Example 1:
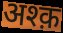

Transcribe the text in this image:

अश्क़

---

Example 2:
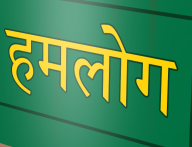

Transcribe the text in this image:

हमलोग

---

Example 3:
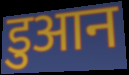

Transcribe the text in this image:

डुआन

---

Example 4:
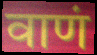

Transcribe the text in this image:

वाणं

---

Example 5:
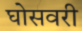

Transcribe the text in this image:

घोसवरी